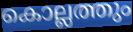
കൊല്ലത്തും